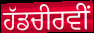
ਹੱਡਚੀਰਵੀਂ